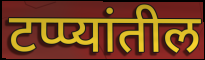
टप्प्यांतील